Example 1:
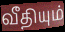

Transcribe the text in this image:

வீதியும்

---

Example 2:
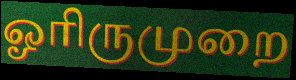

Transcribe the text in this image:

ஓரிருமுறை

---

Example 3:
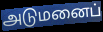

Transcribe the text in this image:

அடுமனைப்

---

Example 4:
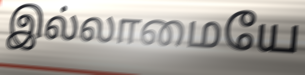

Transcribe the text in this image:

இல்லாமையே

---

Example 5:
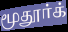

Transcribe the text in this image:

மூதூர்க்